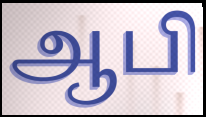
ஆபி